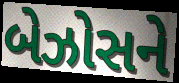
બેઝોસને